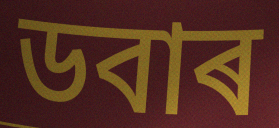
ডবাৰ